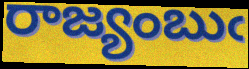
రాజ్యంబుఁ